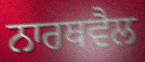
ਨਾਰਥਵੈਲ